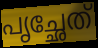
പൃച്ഛേത്